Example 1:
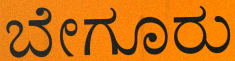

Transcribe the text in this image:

ಬೇಗೂರು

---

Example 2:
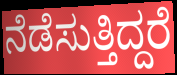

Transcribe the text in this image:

ನೆಡೆಸುತ್ತಿದ್ದರೆ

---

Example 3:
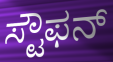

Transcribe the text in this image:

ಸ್ಟೌಫನ್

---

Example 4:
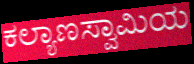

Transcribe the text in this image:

ಕಲ್ಯಾಣಸ್ವಾಮಿಯ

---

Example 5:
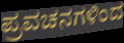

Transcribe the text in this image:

ಪ್ರವಚನಗಳಿಂದ